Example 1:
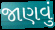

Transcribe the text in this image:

જાણવું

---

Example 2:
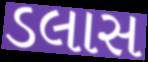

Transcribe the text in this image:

ડલાસ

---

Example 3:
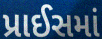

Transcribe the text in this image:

પ્રાઈસમાં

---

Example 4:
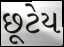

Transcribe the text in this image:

છૂટેય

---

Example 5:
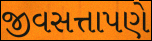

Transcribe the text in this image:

જીવસત્તાપણે